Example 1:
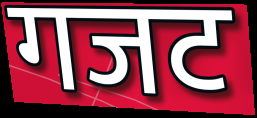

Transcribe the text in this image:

गजट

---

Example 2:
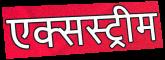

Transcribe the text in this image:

एक्सस्ट्रीम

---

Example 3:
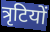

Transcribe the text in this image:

त्रृटियों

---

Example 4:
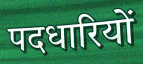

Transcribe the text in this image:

पदधारियों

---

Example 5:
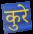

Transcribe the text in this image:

कुरे